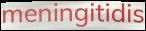
meningitidis